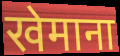
खेमाना